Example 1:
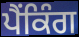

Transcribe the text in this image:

ਪੈਂਕਿੰਗ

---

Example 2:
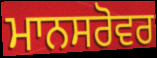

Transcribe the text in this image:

ਮਾਨਸਰੋਵਰ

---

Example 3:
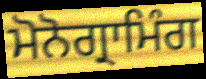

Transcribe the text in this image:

ਮੋਨੋਗ੍ਰਾਮਿੰਗ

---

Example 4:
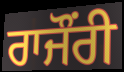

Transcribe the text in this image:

ਰਾਜੌਂਰੀ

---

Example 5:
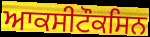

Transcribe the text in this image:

ਆਕਸੀਟੌਕਸਿਨ